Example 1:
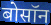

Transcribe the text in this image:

बोसॉन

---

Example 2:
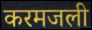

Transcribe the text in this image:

करमजली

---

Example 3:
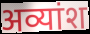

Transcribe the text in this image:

अव्यांश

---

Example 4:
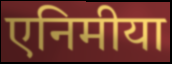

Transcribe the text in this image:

एनिमीया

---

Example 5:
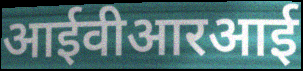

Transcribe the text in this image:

आईवीआरआई